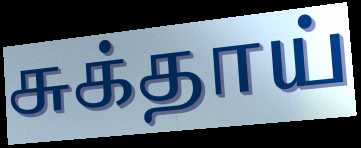
சுக்தாய்